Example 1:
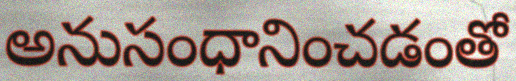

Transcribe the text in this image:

అనుసంధానించడంతో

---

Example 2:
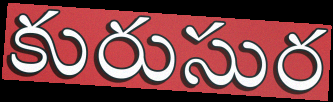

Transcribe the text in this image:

కురుసుర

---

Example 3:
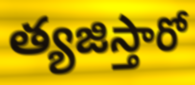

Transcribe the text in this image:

త్యజిస్తారో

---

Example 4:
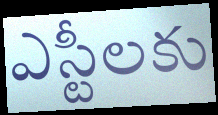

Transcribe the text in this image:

ఎస్టీలకు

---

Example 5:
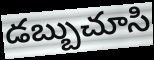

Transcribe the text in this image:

డబ్బుచూసి